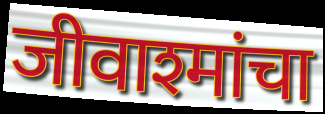
जीवाश्मांचा